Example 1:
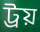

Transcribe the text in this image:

ট্রয়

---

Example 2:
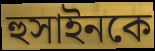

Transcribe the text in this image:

হুসাইনকে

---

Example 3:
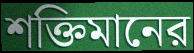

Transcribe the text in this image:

শক্তিমানের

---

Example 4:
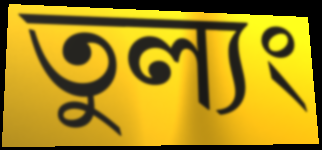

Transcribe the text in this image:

তুল্যং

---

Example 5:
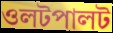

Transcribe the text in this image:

ওলটপালট